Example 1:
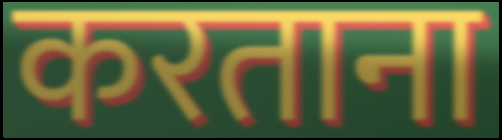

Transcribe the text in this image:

करताना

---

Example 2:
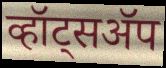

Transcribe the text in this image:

व्हॉट्सॲप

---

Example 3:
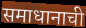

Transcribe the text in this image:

समाधानाची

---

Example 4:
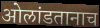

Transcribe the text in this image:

ओलांडतानाच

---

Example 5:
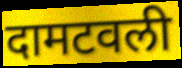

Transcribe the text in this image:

दामटवली